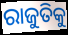
ରାଜୁତିକୁ